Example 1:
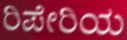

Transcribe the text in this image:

ರಿಪೇರಿಯ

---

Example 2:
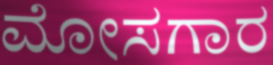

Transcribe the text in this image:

ಮೋಸಗಾರ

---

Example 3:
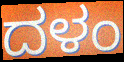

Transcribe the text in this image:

ದಳಂ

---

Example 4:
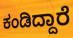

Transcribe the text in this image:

ಕಂಡಿದ್ದಾರೆ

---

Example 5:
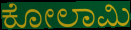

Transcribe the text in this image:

ಕೋಲಾಮಿ